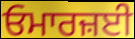
ਓਮਾਰਜ਼ਈ